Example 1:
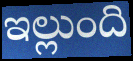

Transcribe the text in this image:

ఇల్లుంది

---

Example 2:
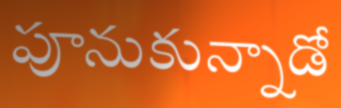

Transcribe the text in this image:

పూనుకున్నాడో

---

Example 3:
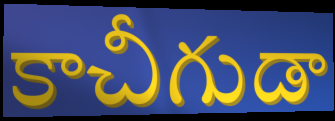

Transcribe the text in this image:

కాచీగుడా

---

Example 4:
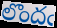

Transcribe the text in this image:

లొందఁ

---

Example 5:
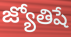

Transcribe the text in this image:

జ్యోతిషే